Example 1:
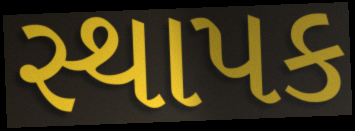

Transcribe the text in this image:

સ્થાપક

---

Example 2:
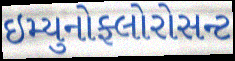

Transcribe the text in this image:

ઇમ્યુનોફ્લોરોસન્ટ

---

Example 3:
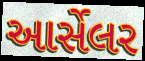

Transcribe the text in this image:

આર્સેલર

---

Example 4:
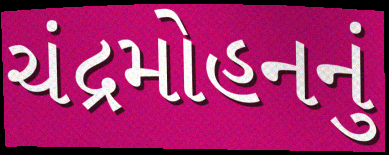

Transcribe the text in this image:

ચંદ્રમોહનનું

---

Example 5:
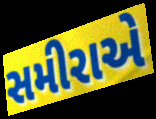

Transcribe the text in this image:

સમીરાએ